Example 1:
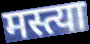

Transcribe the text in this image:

मस्त्या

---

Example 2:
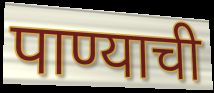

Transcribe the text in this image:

पाण्याची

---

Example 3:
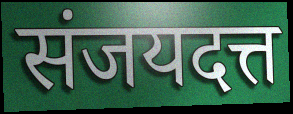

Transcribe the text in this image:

संजयदत्त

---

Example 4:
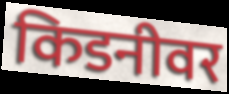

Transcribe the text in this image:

किडनीवर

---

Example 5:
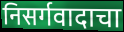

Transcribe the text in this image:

निसर्गवादाचा